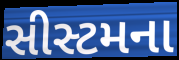
સીસ્ટમના